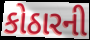
કોઠારની